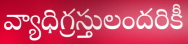
వ్యాధిగ్రస్తులందరికీ